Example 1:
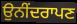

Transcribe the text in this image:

ਉਨੀਂਦਰਾਪਣ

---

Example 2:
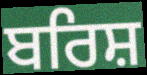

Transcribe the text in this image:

ਬਰਿਸ਼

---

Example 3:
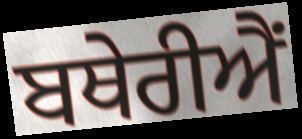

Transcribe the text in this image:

ਬਥੇਰੀਐਂ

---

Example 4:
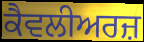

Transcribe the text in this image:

ਕੈਵਲੀਅਰਜ਼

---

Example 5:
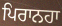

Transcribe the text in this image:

ਪਿਰਾਨਹਾ